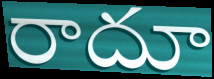
రాదూ